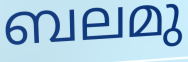
ബലമു